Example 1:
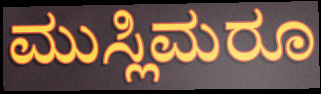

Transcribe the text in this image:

ಮುಸ್ಲಿಮರೂ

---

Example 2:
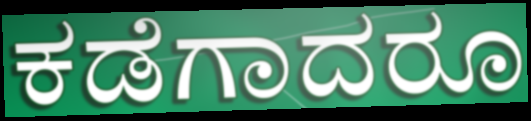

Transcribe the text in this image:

ಕಡೆಗಾದರೂ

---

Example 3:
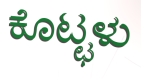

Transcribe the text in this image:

ಕೊಟ್ಟಳು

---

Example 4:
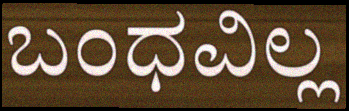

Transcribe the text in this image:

ಬಂಧವಿಲ್ಲ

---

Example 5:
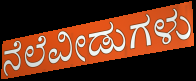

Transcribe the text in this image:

ನೆಲೆವೀಡುಗಳು